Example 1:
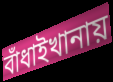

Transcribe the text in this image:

বাঁধাইখানায়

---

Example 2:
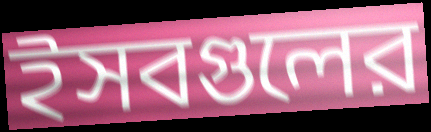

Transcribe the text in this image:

ইসবগুলের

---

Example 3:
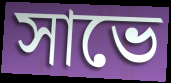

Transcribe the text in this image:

সাভে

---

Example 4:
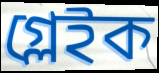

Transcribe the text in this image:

গ্লেইক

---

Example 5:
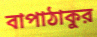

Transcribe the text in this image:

বাপাঠাকুর